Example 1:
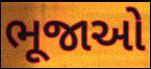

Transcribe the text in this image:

ભૂજાઓ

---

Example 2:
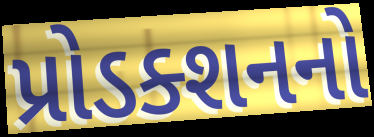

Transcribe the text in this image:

પ્રોડક્શનનો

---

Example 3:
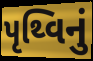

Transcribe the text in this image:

પૃથ્વિનું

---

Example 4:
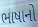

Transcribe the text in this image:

ભાષાનો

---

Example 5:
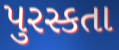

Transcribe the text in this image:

પુરસ્કતા